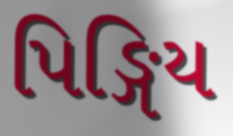
પિઙ્ગિય